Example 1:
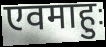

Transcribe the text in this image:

एवमाहुः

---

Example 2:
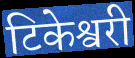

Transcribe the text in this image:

टिकेश्वरी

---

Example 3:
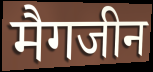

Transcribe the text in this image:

मैगजीन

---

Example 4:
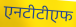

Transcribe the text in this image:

एनटीटीएफ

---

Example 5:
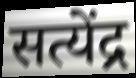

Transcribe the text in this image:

सत्येंद्र